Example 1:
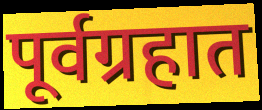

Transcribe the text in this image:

पूर्वग्रहात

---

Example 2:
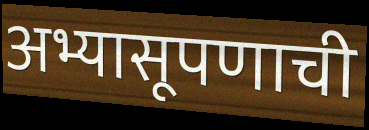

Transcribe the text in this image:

अभ्यासूपणाची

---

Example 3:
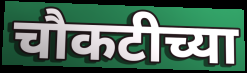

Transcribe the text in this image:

चौकटीच्या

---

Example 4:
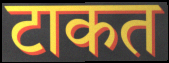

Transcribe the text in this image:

टाकत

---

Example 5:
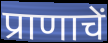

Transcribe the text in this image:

प्राणाचें